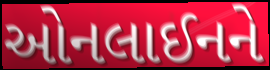
ઓનલાઈનને